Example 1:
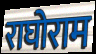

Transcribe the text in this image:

राघोराम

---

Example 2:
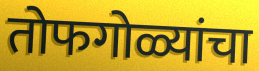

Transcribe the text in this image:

तोफगोळ्यांचा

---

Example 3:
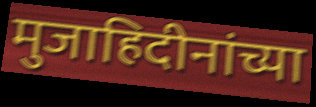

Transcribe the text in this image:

मुजाहिदीनांच्या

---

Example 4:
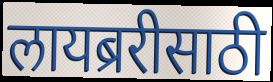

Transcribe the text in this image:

लायब्ररीसाठी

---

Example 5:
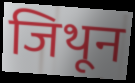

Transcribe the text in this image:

जिथून